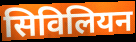
सिविलियन